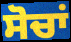
ਸੋਚਾਂ